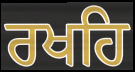
ਰਖਹਿ